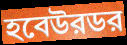
হবেউরডর